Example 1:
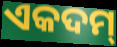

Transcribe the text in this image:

ଏକଦମ୍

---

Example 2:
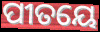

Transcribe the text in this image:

ପୀତୟେ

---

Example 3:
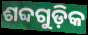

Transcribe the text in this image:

ଶବ୍ଦଗୁଡ଼ିକ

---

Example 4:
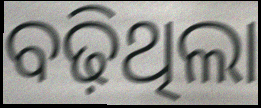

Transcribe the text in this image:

ବଢ଼ିଥିଲା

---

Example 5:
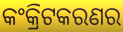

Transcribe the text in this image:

କଂକ୍ରିଟକରଣର